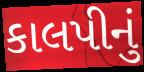
કાલપીનું